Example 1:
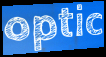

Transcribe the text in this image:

optic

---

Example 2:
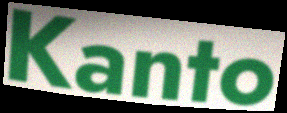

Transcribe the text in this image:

Kanto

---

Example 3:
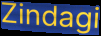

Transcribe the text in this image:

Zindagi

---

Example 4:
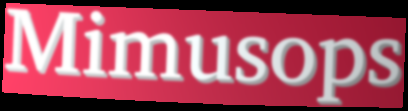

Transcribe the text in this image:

Mimusops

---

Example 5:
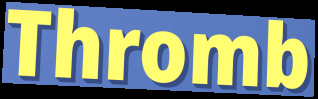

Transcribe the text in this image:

Thromb